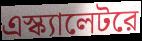
এস্ক্যালেটরে